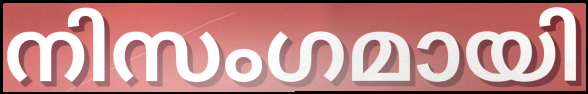
നിസംഗമായി